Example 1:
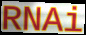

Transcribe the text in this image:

RNAi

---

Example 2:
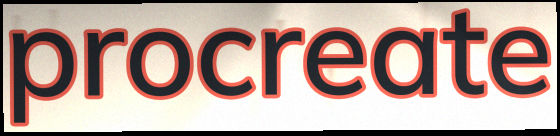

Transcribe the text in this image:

procreate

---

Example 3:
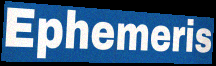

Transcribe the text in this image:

Ephemeris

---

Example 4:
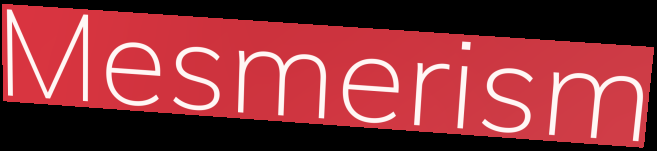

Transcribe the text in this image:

Mesmerism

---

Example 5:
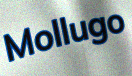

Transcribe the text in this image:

Mollugo